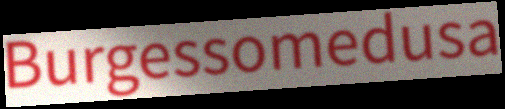
Burgessomedusa